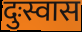
दुःस्वास